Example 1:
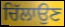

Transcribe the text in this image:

ਚਿੱਲਾਉਣ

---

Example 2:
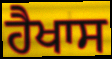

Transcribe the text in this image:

ਹੈਖਾਸ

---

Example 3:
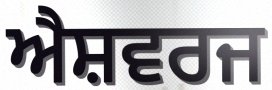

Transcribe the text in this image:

ਐਸ਼ਵਰਜ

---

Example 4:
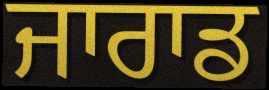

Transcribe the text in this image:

ਜਾਰਾਡ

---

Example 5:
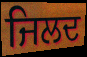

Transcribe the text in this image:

ਜਿਲਦ